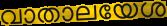
വാതാലയേശ